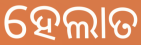
ହେଲାତ